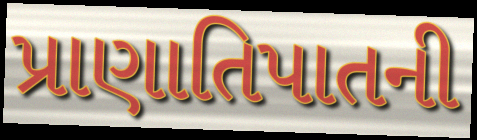
પ્રાણાતિપાતની